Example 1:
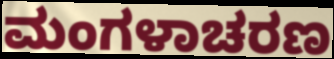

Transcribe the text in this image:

ಮಂಗಳಾಚರಣ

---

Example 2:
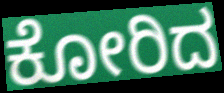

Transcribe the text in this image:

ಕೋರಿದ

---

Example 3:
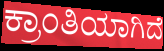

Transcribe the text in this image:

ಕ್ರಾಂತಿಯಾಗಿದೆ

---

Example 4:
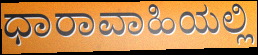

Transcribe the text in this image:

ಧಾರಾವಾಹಿಯಲ್ಲಿ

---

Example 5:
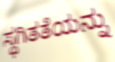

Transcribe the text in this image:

ಸ್ಥಗಿತತೆಯನ್ನು